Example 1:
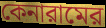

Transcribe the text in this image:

কেনারামের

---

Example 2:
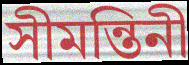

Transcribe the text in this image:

সীমন্তিনী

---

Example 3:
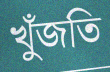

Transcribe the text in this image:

খুঁজতি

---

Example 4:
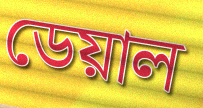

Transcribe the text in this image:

ডেয়াল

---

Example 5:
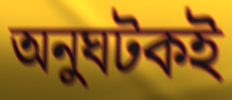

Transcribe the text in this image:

অনুঘটকই